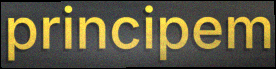
principem